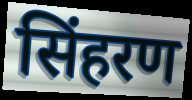
सिंहरण